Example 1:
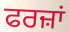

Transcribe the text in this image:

ਫਰਜ਼ਾਂ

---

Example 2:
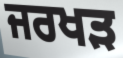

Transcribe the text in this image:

ਜਰਖੜ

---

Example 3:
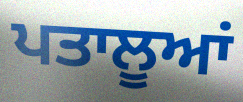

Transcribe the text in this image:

ਪਤਾਲੂਆਂ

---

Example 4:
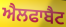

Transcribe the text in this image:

ਐਲਫਾਬੈਟ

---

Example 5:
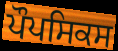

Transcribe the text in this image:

ਪੌਪਸਿਕਸ